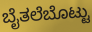
ಬೈತಲೆಬೊಟ್ಟು